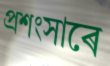
প্ৰশংসাৰে